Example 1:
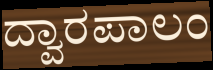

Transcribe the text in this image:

ದ್ವಾರಪಾಲಂ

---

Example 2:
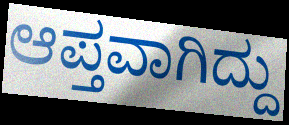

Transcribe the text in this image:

ಆಪ್ತವಾಗಿದ್ದು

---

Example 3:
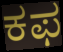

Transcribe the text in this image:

ಕಫ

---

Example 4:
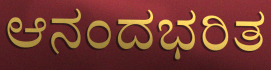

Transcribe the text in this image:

ಆನಂದಭರಿತ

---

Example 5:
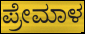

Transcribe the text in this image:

ಪ್ರೇಮಾಳ